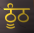
ਠੂੰਠ